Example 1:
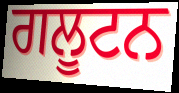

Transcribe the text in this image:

ਗਲੂਟਨ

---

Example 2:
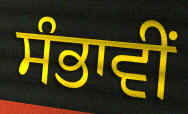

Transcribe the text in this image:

ਸੰਭਾਵੀਂ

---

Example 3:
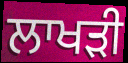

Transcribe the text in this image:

ਲਾਖੜੀ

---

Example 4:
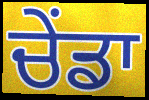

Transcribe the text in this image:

ਚੇਂਡਾ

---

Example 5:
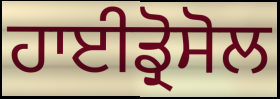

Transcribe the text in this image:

ਹਾਈਡ੍ਰੋਸੋਲ